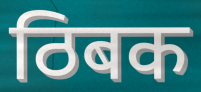
ठिबक